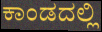
ಕಾಂಡದಲ್ಲಿ